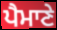
ਪੈਮਾਣੇ